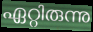
ഏറ്റിരുന്നു